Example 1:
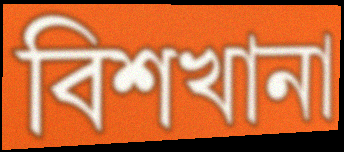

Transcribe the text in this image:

বিশখানা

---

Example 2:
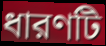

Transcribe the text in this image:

ধারণটি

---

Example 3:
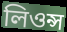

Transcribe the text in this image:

লিওন্স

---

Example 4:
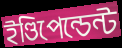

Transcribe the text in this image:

ইণ্ডিপেন্ডেন্ট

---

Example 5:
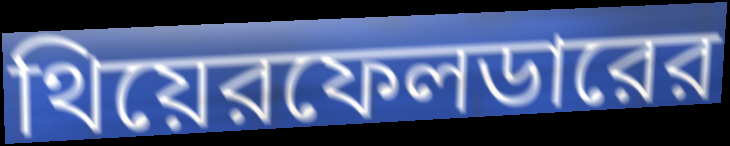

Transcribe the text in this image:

থিয়েরফেলডারের